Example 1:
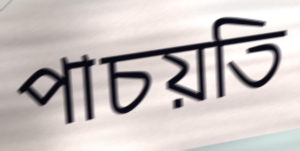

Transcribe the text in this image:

পাচয়তি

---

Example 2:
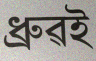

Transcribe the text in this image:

ধ্ৰুৱই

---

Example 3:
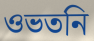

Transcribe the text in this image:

ওভতনি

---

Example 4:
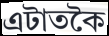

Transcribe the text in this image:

এটাতকৈ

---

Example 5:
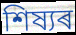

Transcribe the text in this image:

শিষ্যৰ